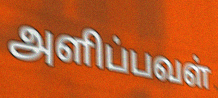
அளிப்பவள்